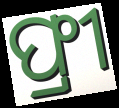
ଫ୍ରୀ